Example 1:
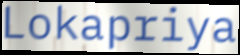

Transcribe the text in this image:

Lokapriya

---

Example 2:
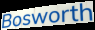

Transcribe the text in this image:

Bosworth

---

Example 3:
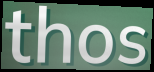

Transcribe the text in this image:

thos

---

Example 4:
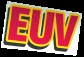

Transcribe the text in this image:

EUV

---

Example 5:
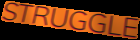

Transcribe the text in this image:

STRUGGLE